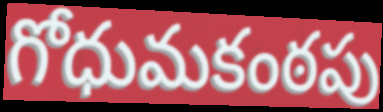
గోధుమకంఠపు